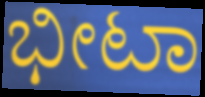
ಭೀಟಾ